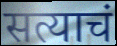
सत्याचं